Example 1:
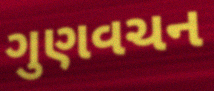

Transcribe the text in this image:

ગુણવચન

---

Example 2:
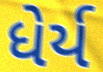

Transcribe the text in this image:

ધેર્ય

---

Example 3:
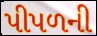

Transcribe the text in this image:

પીપળની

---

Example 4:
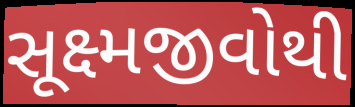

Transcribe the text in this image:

સૂક્ષ્મજીવોથી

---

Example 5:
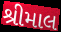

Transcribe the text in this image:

શ્રીમાલ